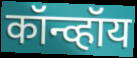
कॉन्व्हॉय